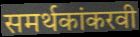
समर्थकांकरवी